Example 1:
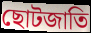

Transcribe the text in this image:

ছোটজাতি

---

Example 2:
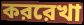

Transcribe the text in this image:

কররেখা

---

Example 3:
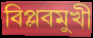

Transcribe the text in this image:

বিপ্লবমুখী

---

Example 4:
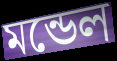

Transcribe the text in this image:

মন্ডেল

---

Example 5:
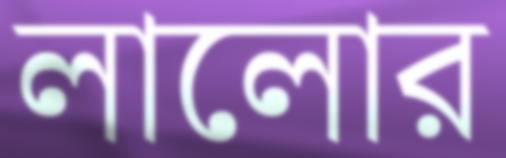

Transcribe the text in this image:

লালোর